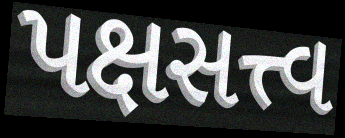
પક્ષસત્ત્વ